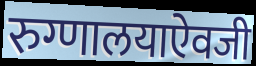
रुग्णालयाऐवजी